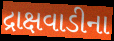
દ્રાક્ષવાડીના